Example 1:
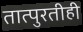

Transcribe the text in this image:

तात्पुरतीही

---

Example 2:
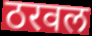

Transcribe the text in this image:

ठरवल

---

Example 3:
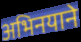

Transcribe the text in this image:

अभिनयाने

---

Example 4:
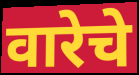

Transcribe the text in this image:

वारेचे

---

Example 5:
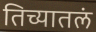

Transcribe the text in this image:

तिच्यातलं